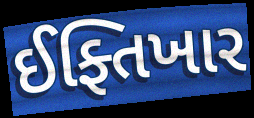
ઈફ્તિખાર